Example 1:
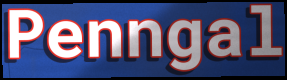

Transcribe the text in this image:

Penngal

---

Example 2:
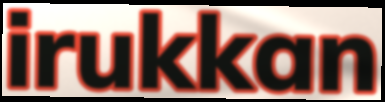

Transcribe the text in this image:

irukkan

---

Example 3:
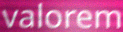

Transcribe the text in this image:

valorem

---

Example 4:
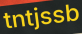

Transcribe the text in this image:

tntjssb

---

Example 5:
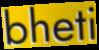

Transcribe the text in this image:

bheti